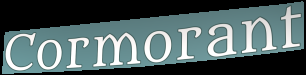
Cormorant